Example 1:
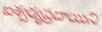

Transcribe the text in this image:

ఐశ్వర్యప్రదాయిని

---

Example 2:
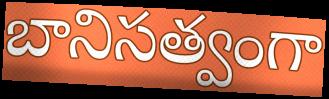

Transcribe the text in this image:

బానిసత్వంగా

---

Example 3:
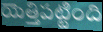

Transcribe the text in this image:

యెత్తిపట్టింది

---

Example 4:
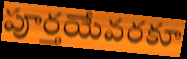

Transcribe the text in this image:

పూర్తయేవరకూ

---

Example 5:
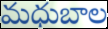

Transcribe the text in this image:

మధుబాల